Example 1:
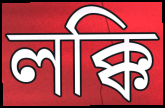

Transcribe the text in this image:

লক্কি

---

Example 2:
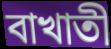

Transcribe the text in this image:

বাখাতী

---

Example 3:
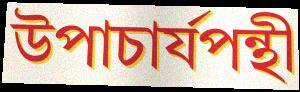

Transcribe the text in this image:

উপাচার্যপন্থী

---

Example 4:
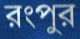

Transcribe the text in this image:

রংপুর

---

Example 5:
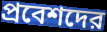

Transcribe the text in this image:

প্রবেশদের